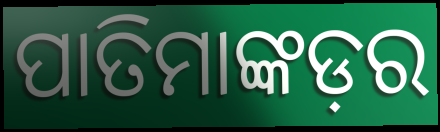
ପାତିମାଙ୍କଡ଼ର